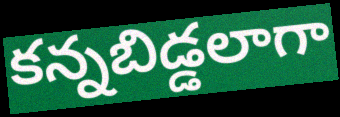
కన్నబిడ్డలాగా